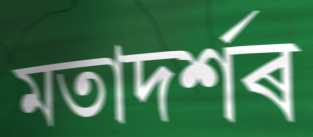
মতাদৰ্শৰ